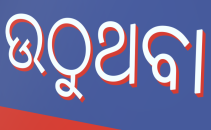
ଉଠୁଥବା